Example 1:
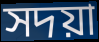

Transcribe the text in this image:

সদয়া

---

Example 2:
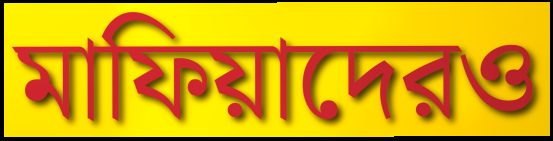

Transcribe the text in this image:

মাফিয়াদেরও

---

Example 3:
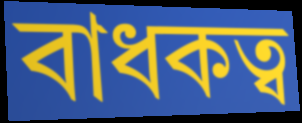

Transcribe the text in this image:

বাধকত্ব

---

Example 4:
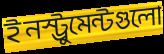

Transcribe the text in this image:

ইনস্ট্রুমেন্টগুলো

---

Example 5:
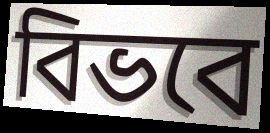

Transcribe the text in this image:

বিভবে